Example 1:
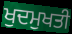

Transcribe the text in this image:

ਖੁਦਮੁਖਤੀ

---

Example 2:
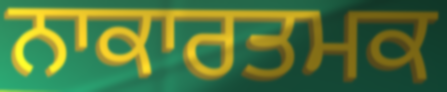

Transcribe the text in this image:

ਨਾਕਾਰਤਮਕ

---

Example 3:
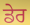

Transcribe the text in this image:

ਡੇਰ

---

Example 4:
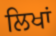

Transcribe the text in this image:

ਲਿਖਾਂ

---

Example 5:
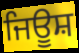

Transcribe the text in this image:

ਜਿਊਸ਼